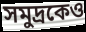
সমুদ্রকেও